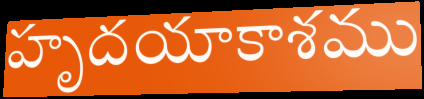
హృదయాకాశము